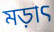
মড়াৎ